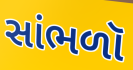
સાંભળૉ